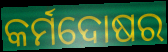
କର୍ମଦୋଷର